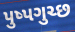
પુષ્પગુચ્છ